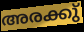
അരക്കു്